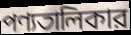
পণ্যতালিকার